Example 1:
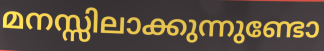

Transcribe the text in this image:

മനസ്സിലാക്കുന്നുണ്ടോ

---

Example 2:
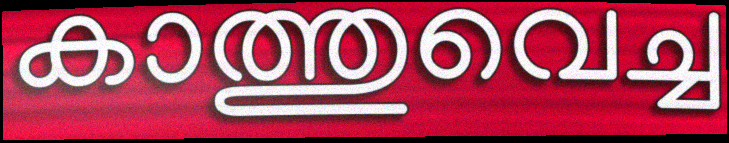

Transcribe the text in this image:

കാത്തുവെച്ച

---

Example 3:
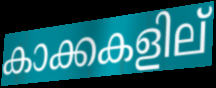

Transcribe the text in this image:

കാക്കകളില്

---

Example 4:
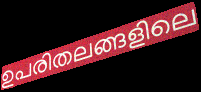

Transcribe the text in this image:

ഉപരിതലങ്ങളിലെ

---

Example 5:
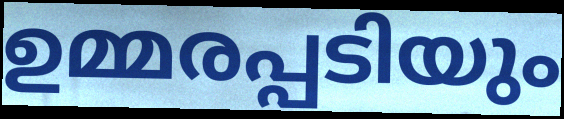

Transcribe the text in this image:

ഉമ്മരപ്പടിയും